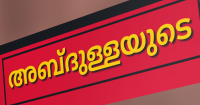
അബ്ദുള്ളയുടെ